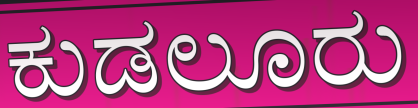
ಕುಡಲೂರು